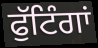
ਫੁੱਟਿੰਗਾਂ